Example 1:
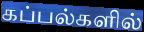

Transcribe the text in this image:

கப்பல்களில்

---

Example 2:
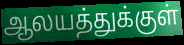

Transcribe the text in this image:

ஆலயத்துக்குள்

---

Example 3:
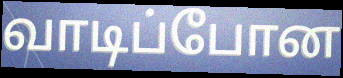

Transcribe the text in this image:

வாடிப்போன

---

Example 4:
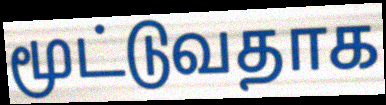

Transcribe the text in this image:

மூட்டுவதாக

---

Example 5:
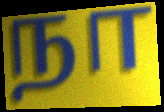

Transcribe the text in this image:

நா